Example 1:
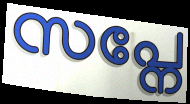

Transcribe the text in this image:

സപ്നേ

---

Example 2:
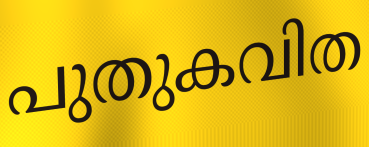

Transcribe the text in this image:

പുതുകവിത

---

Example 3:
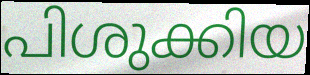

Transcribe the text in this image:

പിശുക്കിയ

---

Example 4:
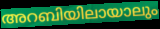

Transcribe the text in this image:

അറബിയിലായാലും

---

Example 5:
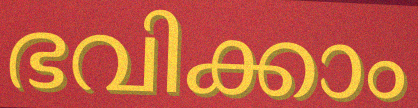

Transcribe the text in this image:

ഭവിക്കാം